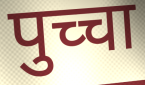
पुच्चा